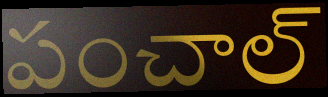
పంచాల్